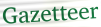
Gazetteer